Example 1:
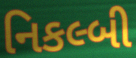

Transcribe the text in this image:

નિકલ્બી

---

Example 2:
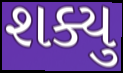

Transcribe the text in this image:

શક્યુ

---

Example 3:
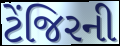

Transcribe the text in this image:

ટેંજિરની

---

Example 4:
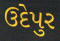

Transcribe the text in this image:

ઉદેપુર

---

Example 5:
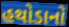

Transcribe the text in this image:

હથોડાનો